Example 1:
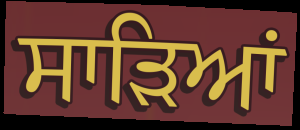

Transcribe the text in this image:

ਸਾੜਿਆਂ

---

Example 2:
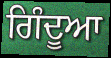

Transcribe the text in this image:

ਗਿੰਦੂਆ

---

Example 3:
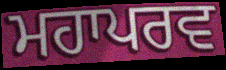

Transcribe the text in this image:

ਮਹਾਪਰਵ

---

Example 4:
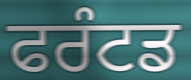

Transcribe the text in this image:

ਫਰੰਟਡ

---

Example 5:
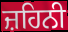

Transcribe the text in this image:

ਜ਼ਹਿਨੀ